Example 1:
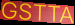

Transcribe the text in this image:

GSTTA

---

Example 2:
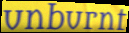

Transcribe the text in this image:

unburnt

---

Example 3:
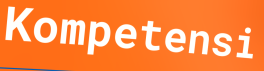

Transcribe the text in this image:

Kompetensi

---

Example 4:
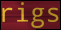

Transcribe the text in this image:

rigs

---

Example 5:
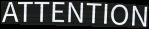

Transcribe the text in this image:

ATTENTION